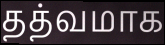
தத்வமாக